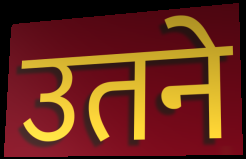
उतने